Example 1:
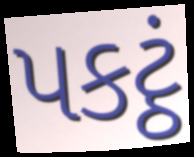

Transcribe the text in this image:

પકટ્ઠં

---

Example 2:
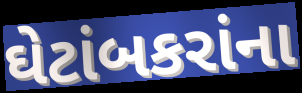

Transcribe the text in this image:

ઘેટાંબકરાંના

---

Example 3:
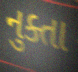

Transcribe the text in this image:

નુક્તા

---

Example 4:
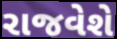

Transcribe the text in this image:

રાજવેશે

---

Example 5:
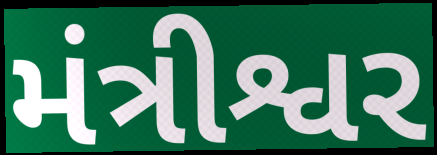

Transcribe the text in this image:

મંત્રીશ્વર